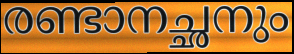
രണ്ടാനച്ഛനും